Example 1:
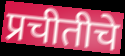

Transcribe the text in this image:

प्रचीतीचे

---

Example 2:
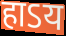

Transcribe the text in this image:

हाऽय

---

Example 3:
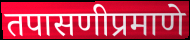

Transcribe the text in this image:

तपासणीप्रमाणे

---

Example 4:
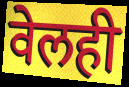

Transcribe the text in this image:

वेलही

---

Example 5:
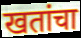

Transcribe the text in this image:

खतांचा